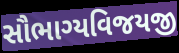
સૌભાગ્યવિજયજી